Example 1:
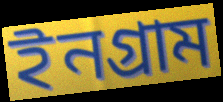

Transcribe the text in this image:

ইনগ্রাম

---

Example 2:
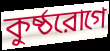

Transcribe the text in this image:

কুষ্ঠরোগে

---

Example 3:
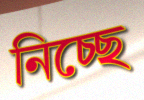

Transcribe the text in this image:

নিচ্ছে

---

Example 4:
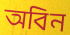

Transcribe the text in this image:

অবিন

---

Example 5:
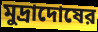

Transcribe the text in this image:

মুদ্রাদোষের